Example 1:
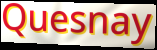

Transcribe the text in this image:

Quesnay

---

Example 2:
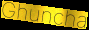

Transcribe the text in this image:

Ghuncha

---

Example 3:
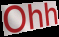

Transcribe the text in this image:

Ohh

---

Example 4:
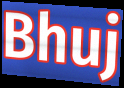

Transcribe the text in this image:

Bhuj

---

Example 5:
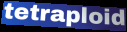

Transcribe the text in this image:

tetraploid